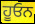
ਹੂਓਨ